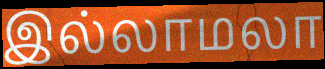
இல்லாமலா